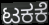
ಟಕಕೆ